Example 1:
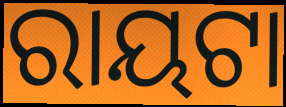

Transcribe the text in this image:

ରାୟଟା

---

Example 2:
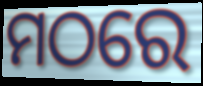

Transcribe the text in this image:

ମଠରେ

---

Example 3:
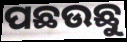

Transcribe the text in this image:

ପଛଉଛୁ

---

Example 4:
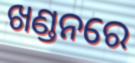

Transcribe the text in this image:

ଖଣ୍ଡନରେ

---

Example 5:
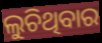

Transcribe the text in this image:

ଲୁଚିଥିବାର